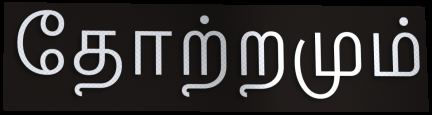
தோற்றமும்